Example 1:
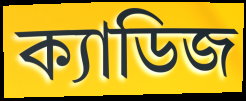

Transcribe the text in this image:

ক্যাডিজ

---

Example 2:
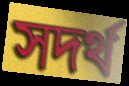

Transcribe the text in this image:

সদর্থ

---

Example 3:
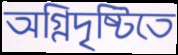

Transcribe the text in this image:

অগ্নিদৃষ্টিতে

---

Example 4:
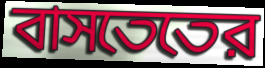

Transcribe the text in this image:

বাসতেতের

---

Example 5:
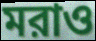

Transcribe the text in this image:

মরাও